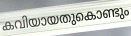
കവിയായതുകൊണ്ടും